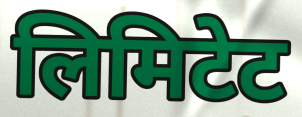
लिमिटेट